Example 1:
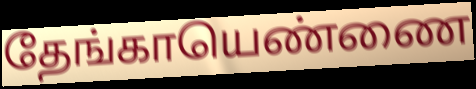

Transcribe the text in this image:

தேங்காயெண்ணை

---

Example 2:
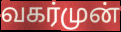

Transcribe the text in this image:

வகர்முன்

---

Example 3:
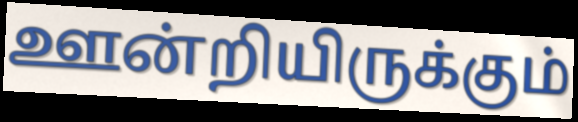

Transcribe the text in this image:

ஊன்றியிருக்கும்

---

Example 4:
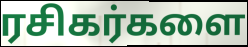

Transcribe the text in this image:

ரசிகர்களை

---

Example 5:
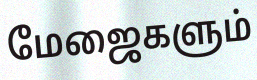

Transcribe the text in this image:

மேஜைகளும்